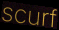
scurf